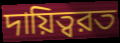
দায়িত্বরত